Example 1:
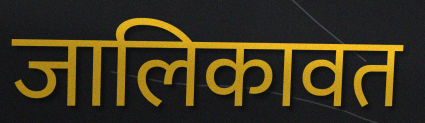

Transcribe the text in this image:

जालिकावत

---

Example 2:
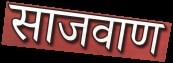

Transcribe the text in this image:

साजवाण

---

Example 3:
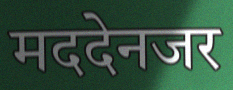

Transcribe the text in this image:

मददेनजर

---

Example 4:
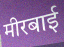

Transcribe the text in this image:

मीरबाई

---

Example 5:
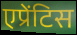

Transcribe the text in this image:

एप्रेंटिस